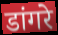
डांगरे